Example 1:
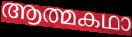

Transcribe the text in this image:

ആത്മകഥാ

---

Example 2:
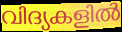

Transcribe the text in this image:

വിദ്യകളിൽ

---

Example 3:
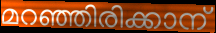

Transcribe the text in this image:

മറഞ്ഞിരിക്കാന്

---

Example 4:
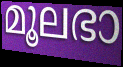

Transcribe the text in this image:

മൂലഭാ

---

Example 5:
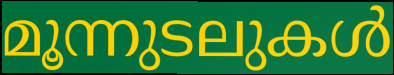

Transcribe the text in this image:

മൂന്നുടലുകൾ